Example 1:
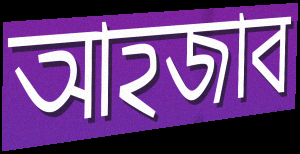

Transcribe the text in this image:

আহজাব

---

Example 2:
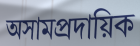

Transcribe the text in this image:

অসামপ্রদায়িক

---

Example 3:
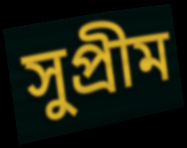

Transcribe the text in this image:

সুপ্রীম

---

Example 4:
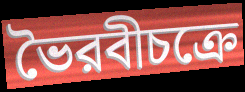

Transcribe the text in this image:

ভৈরবীচক্রে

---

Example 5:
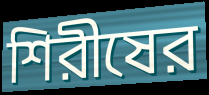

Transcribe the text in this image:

শিরীষের